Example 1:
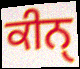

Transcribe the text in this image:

ਕੀਨੑ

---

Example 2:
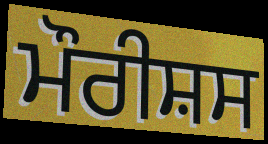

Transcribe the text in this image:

ਮੌਰੀਸ਼ਸ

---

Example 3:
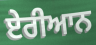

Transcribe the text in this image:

ਏਰੀਆਨ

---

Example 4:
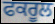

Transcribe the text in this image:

ਫਕਰੂਲ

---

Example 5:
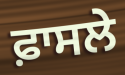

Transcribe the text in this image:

ਫ਼ਾਸਲੇ